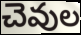
చెవుల